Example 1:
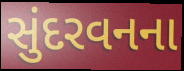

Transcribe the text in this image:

સુંદરવનના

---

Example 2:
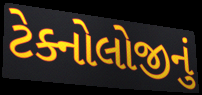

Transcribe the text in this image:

ટેક્નોલોજીનું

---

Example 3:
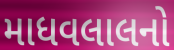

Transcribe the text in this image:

માધવલાલનો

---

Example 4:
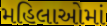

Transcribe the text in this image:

મહિલાઓમાં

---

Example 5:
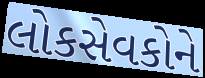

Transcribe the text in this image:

લોકસેવકોને